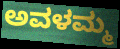
ಅವಳಮ್ಮ